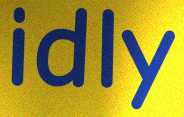
idly